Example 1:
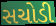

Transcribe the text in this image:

સચોડી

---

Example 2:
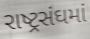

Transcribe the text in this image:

રાષ્ટ્રસંઘમાં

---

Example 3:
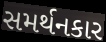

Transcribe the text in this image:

સમર્થનકાર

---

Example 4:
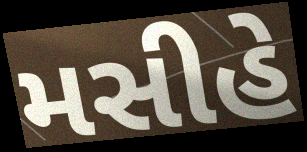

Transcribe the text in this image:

મસીહે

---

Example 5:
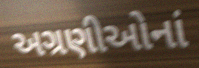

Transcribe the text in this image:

અગ્રણીઓનાં